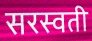
सरस्वती